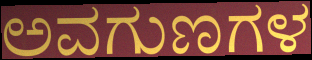
ಅವಗುಣಗಳ